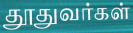
தூதுவர்கள்